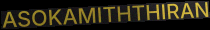
ASOKAMITHTHIRAN